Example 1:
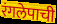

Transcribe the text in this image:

रंगलेपाची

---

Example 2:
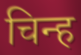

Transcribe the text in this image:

चिन्ह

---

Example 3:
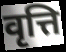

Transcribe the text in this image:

वृत्ति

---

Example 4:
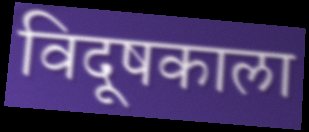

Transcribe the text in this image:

विदूषकाला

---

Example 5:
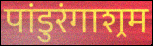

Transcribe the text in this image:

पांडुरंगाश्रम